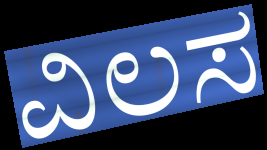
ವಿಲಸ